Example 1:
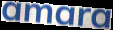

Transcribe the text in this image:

amara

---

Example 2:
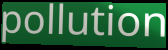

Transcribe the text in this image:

pollution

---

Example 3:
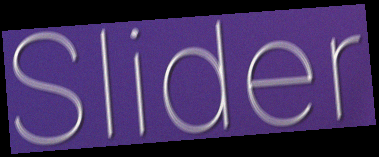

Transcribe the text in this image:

Slider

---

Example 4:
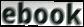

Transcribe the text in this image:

ebook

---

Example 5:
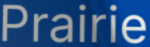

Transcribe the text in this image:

Prairie